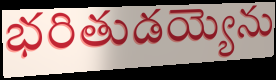
భరితుడయ్యెను